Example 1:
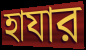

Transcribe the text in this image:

হাযার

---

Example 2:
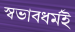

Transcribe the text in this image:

স্বভাবধর্মই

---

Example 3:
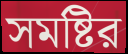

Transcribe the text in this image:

সমষ্টির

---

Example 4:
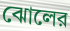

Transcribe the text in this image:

ঝোলের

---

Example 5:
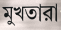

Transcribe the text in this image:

মুখতারা